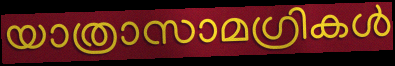
യാത്രാസാമഗ്രികൾ